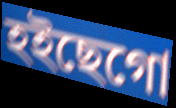
হইছেগো